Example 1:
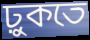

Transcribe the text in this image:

ঢ়ুকতে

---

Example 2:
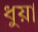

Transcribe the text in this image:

ধুয়া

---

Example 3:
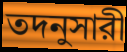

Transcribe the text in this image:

তদনুসারী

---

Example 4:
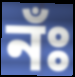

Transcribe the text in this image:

নঁঃ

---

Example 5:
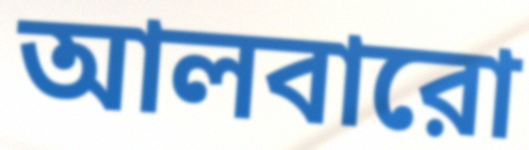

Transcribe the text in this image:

আলবারো